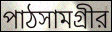
পাঠসামগ্রীর